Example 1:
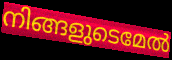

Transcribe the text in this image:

നിങ്ങളുടെമേൽ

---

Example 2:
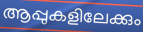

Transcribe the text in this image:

ആപ്പുകളിലേക്കും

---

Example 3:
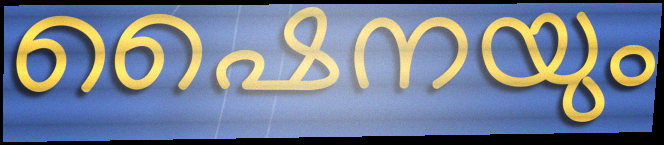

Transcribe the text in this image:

ഷൈനയും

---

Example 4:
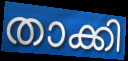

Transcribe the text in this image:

താക്കി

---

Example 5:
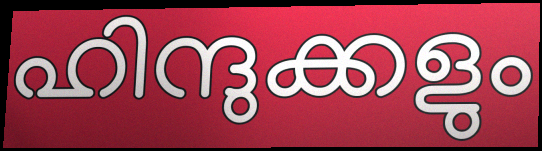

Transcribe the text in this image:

ഹിന്ദുക്കളും